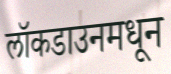
लॉकडाउनमधून